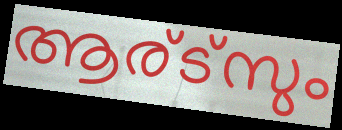
ആര്ട്സും